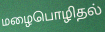
மழைபொழிதல்